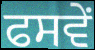
ਫਸਵੇਂ